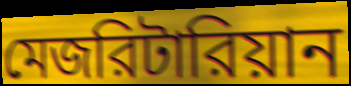
মেজরিটারিয়ান